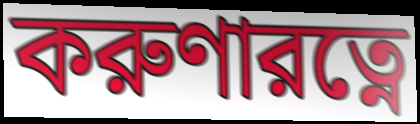
করুণারত্নে